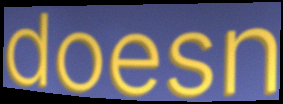
doesn